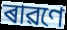
ৰাৱণে